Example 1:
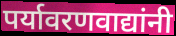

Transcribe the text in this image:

पर्यावरणवाद्यांनी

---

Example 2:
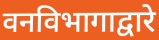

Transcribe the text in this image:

वनविभागाद्वारे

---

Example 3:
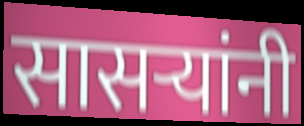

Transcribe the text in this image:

सासर्‍यांनी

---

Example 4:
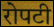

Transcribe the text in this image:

रोपटी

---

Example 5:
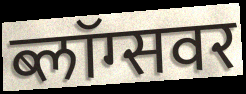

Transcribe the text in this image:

ब्लॉग्सवर